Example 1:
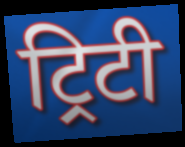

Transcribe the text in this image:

ट्रिटी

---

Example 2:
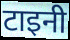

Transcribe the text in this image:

टाइनी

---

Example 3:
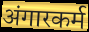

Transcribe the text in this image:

अंगारकर्म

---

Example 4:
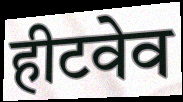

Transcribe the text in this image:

हीटवेव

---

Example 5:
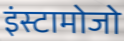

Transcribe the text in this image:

इंस्टामोजो